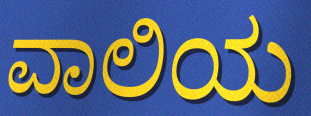
ವಾಲಿಯ